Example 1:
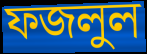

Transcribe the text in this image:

ফজলুল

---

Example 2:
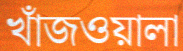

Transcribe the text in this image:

খাঁজওয়ালা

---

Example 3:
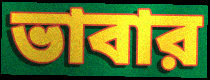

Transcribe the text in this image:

ভাবার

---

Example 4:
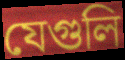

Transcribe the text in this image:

যেগুলি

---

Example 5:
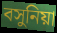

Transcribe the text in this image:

বসুনিয়া